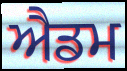
ਐਡਮ